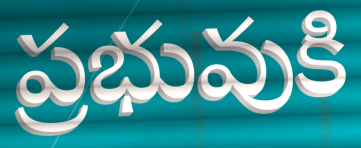
ప్రభువుకి